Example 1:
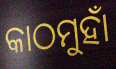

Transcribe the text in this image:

କାଠମୁହାଁ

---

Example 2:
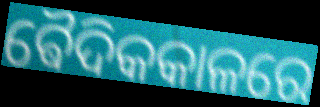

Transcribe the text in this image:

ଵୈଦିକକାଳରେ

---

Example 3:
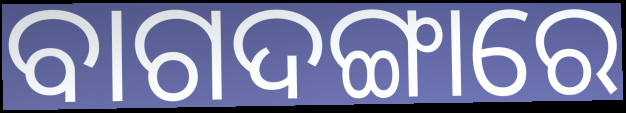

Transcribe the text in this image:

ବାଗଦଙ୍ଗାରେ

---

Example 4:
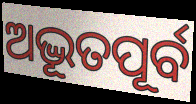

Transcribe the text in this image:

ଅଦ୍ଭୂତପୂର୍ବ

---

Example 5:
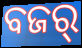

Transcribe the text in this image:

ବଜର୍